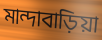
মান্দাবাড়িয়া